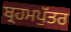
ਬ੍ਰਹਮਪੁੱਤਰ